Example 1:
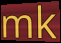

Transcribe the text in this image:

mk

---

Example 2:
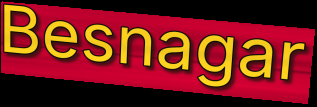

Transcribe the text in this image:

Besnagar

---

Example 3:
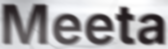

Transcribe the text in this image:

Meeta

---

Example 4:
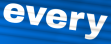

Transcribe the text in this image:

every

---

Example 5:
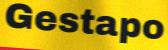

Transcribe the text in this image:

Gestapo